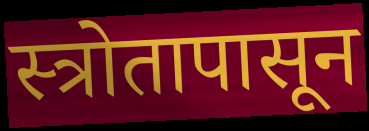
स्त्रोतापासून